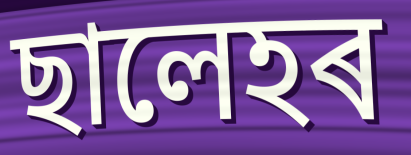
ছালেহৰ